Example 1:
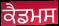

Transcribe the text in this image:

ਕੈਡਮਸ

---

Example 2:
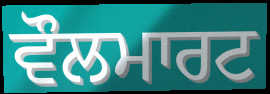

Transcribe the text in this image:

ਵੌਲਮਾਰਟ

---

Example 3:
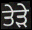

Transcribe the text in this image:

ਤੇੜੇ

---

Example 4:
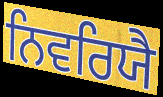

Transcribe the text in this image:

ਨਿਵਰਿਯੈ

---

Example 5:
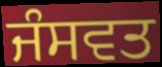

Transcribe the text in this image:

ਜੰਸਵਤ